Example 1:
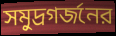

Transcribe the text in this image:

সমুদ্রগর্জনের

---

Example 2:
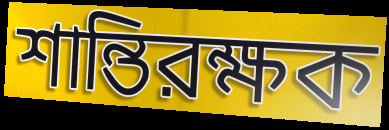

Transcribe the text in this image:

শান্তিরক্ষক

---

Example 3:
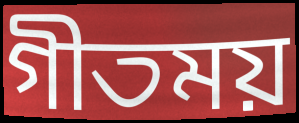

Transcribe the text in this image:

গীতময়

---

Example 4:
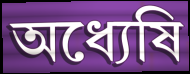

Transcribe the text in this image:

অধ্যেষি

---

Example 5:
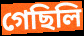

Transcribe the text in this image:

গেছিলি